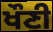
ਖੌਣੀ